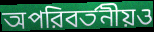
অপরিবর্তনীয়ও